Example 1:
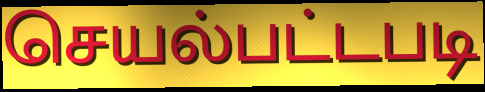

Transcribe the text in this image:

செயல்பட்டபடி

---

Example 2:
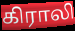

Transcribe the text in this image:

கிராலி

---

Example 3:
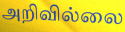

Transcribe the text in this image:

அறிவில்லை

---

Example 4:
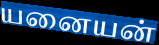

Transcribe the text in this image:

யனையன்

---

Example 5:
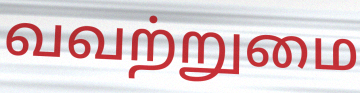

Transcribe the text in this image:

வவற்றுமை